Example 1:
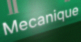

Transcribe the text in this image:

Mecanique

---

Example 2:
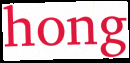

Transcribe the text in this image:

hong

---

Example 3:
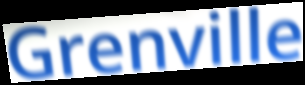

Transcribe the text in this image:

Grenville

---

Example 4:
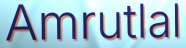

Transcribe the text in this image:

Amrutlal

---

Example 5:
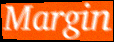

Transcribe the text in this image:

Margin